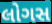
લોગસ